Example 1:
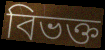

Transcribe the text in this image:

বিভক্ত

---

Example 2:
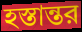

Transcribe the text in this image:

হস্তান্তর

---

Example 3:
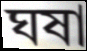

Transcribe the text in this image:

ঘষা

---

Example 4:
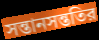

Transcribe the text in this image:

সন্তানসন্ততির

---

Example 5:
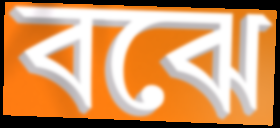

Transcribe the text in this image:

বঝে